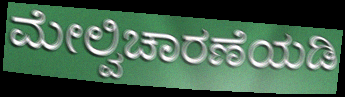
ಮೇಲ್ವಿಚಾರಣೆಯಡಿ